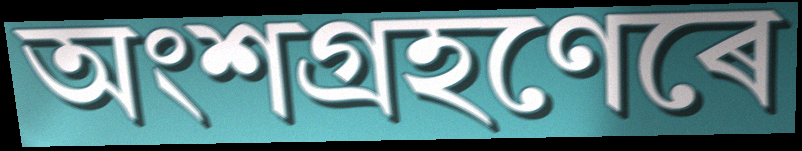
অংশগ্ৰহণেৰে